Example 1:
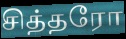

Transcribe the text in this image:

சித்தரோ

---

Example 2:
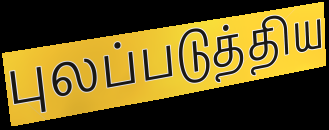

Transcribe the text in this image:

புலப்படுத்திய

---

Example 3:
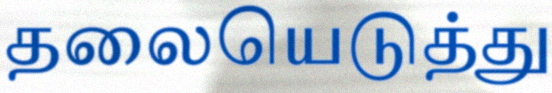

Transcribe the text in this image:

தலையெடுத்து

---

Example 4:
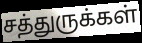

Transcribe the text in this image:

சத்துருக்கள்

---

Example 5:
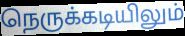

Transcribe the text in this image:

நெருக்கடியிலும்